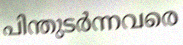
പിന്തുടർന്നവരെ